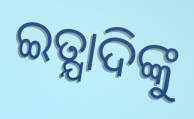
ଇତ୍ଯାଦିଙ୍କୁ